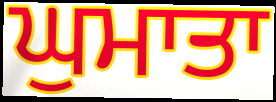
ਘੁਮਾਤਾ